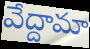
వేద్దామా